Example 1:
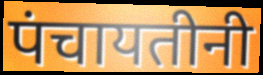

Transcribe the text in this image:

पंचायतीनी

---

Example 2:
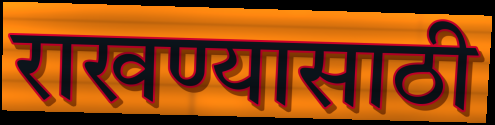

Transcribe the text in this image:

राखण्यासाठी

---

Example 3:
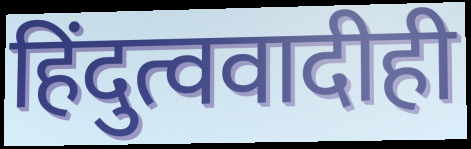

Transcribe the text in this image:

हिंदुत्ववादीही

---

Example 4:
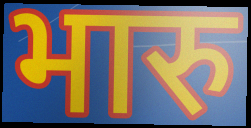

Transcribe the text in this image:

भारु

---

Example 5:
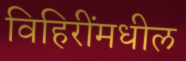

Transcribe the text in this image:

विहिरींमधील